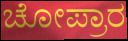
ಚೋಪ್ರಾರ